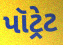
પૉટ્રેટ